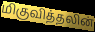
மிகுவித்தலின்